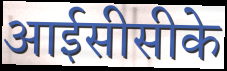
आईसीसीके